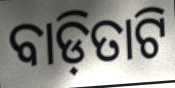
ବାଡ଼ିତାଟି